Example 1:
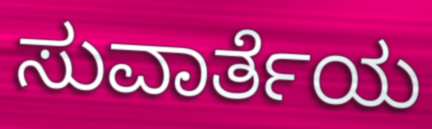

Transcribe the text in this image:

ಸುವಾರ್ತೆಯ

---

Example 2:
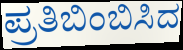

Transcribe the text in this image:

ಪ್ರತಿಬಿಂಬಿಸಿದ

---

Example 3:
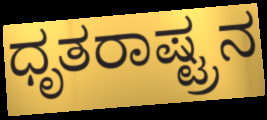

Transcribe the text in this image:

ಧೃತರಾಷ್ಟ್ರನ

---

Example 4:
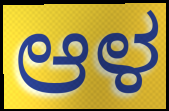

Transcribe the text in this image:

ಆಳ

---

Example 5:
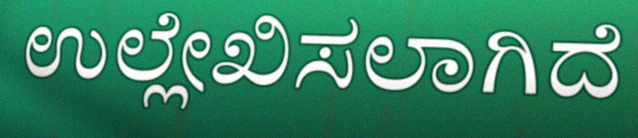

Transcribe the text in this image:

ಉಲ್ಲೇಖಿಸಲಾಗಿದೆ